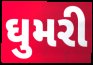
ઘુમરી